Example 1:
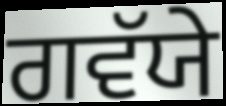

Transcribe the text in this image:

ਗਵੱਯੇ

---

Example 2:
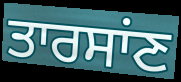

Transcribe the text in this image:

ਤਾਰਸਾਂਣ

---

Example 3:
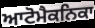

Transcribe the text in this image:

ਆਟੋਮੈਕਨਿਕਾ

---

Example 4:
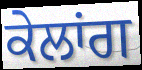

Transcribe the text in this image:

ਕੇਲਾਂਗ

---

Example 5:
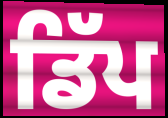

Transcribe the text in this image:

ਡਿੱਪ